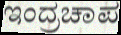
ಇಂದ್ರಚಾಪ